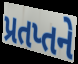
પ્રતપ્તને